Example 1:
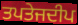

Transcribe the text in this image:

ਤਪਤੇਜਦੀਪ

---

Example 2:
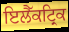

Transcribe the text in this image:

ਇਲੈੱਕਟ੍ਰਿਕ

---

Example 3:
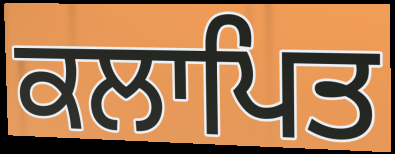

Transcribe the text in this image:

ਕਲਾਪਿਤ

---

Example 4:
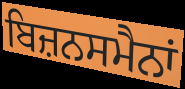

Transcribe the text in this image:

ਬਿਜ਼ਨਸਮੈਨਾਂ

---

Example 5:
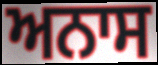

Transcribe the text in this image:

ਅਨਾਸ